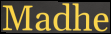
Madhe